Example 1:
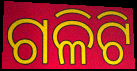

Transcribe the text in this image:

ଗଳିଟି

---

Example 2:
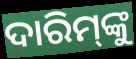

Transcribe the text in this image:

ଦାରିମ୍‍ଙ୍କୁ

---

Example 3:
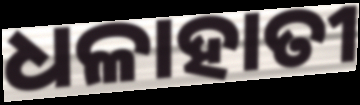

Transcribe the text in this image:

ଧଳାହାତୀ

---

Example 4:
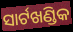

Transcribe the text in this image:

ସାର୍ଟଖଣ୍ଡିକ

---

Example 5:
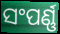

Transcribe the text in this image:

ସଂପର୍ଣ୍ଣ